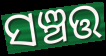
ସଞ୍ଚତ୍ତ